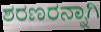
ಶರಣರನ್ನಾಗಿ